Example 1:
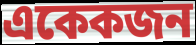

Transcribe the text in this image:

একেকজন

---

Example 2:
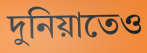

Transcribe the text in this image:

দুনিয়াতেও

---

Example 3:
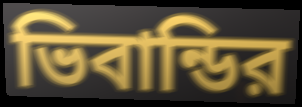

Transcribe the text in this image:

ভিবান্ডির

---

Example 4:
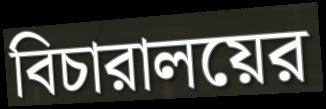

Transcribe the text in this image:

বিচারালয়ের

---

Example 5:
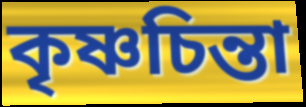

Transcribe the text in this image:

কৃষ্ণচিন্তা